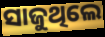
ସାଜୁଥିଲେ